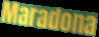
Maradona